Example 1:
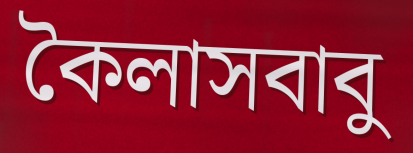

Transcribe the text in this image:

কৈলাসবাবু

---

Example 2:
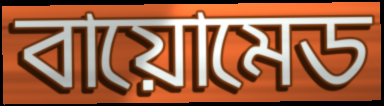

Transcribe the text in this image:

বায়োমেড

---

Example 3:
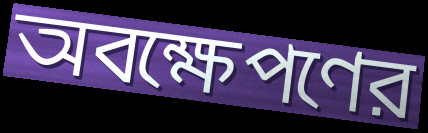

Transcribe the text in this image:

অবক্ষেপণের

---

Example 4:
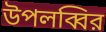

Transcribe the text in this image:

উপলব্বির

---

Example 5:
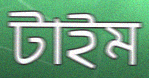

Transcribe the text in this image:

টাইম